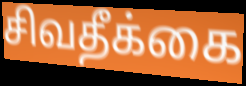
சிவதீக்கை